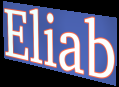
Eliab